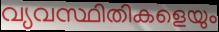
വ്യവസ്ഥിതികളെയും